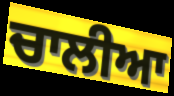
ਚਾਲੀਆ